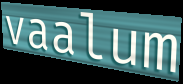
vaalum